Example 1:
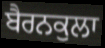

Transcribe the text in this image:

ਬੈਰਨਕੁਲਾ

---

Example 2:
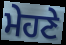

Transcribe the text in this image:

ਮੇਹਣੇ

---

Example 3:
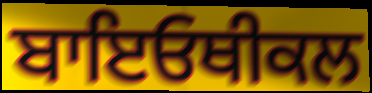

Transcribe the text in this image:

ਬਾਇਓਥੀਕਲ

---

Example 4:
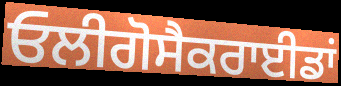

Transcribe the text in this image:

ਓਲੀਗੋਸੈਕਰਾਈਡਾਂ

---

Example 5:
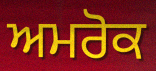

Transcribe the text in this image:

ਅਮਰੋਕ